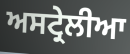
ਅਸਟ੍ਰੇਲੀਆ